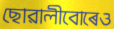
ছোৱালীবোৰেও